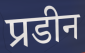
प्रडीन